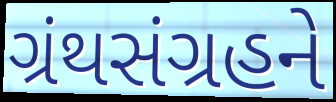
ગ્રંથસંગ્રહને